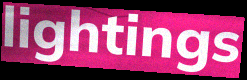
lightings